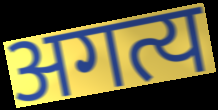
अगत्य